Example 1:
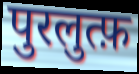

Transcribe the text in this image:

पुरलुत्फ़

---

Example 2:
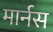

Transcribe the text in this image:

मार्नस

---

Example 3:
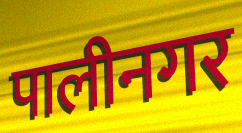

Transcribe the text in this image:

पालीनगर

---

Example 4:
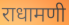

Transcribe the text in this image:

राधामणी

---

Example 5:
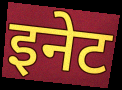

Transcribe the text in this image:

इनेट